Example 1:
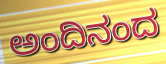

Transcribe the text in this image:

ಅಂದಿನಂದ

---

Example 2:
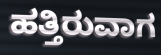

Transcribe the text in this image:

ಹತ್ತಿರುವಾಗ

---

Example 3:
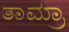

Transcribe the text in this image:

ತಾಮ್ರಾ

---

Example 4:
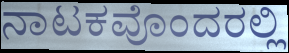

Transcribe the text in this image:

ನಾಟಕವೊಂದರಲ್ಲಿ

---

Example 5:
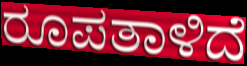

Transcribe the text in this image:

ರೂಪತಾಳಿದೆ